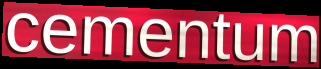
cementum